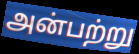
அன்பற்று